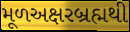
મૂળઅક્ષરબ્રહ્મથી